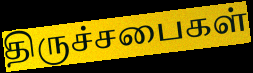
திருச்சபைகள்